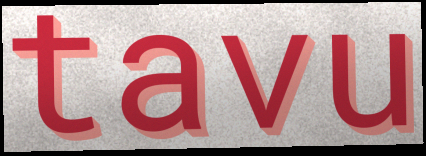
tavu